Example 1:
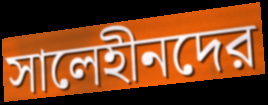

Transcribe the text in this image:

সালেহীনদের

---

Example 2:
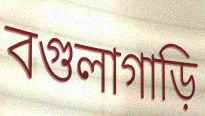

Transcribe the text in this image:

বগুলাগাড়ি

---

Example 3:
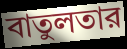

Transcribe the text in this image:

বাতুলতার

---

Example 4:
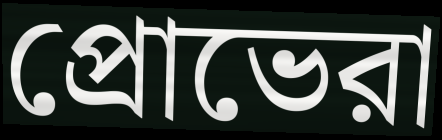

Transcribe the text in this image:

প্রোভেরা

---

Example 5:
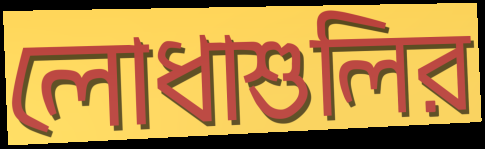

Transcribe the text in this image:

লোধাশুলির